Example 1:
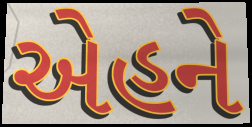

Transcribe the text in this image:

એહને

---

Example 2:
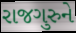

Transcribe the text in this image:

રાજગુરુને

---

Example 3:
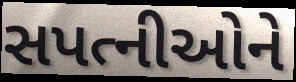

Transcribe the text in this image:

સપત્નીઓને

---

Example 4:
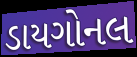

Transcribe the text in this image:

ડાયગોનલ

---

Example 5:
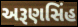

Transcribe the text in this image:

અરૂણસિંહ